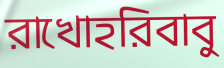
রাখোহরিবাবু